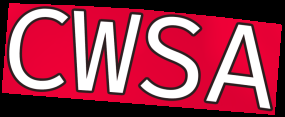
CWSA